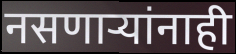
नसणार्‍यांनाही